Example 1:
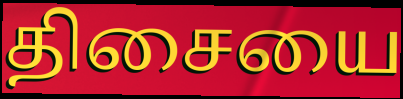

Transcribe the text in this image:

திசையை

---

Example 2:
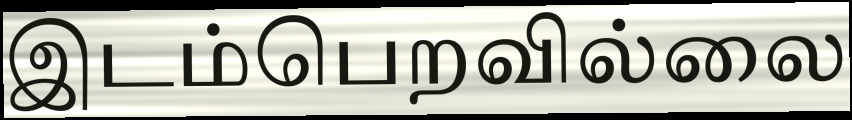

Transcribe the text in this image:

இடம்பெறவில்லை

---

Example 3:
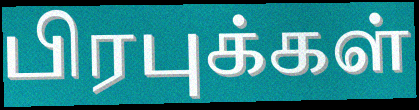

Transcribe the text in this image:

பிரபுக்கள்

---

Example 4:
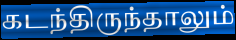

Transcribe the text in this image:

கடந்திருந்தாலும்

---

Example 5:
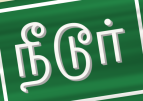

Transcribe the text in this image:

நீடூர்